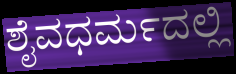
ಶೈವಧರ್ಮದಲ್ಲಿ